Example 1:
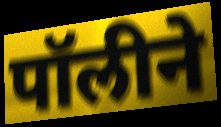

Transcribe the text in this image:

पॉलीने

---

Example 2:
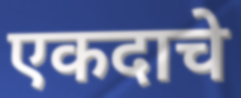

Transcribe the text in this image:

एकदाचे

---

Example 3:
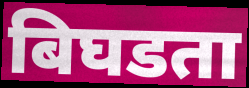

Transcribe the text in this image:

बिघडता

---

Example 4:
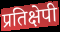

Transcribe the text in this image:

प्रतिक्षेपी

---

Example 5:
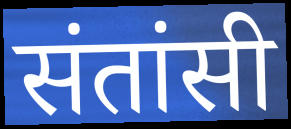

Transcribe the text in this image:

संतांसी